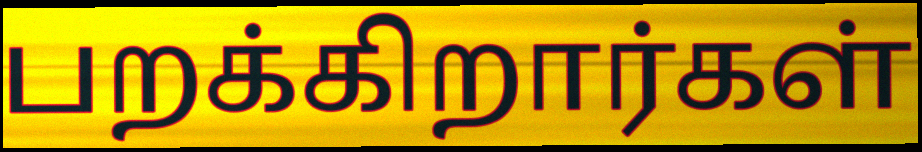
பறக்கிறார்கள்